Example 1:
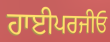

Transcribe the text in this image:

ਹਾਈਪਰਜੀਓ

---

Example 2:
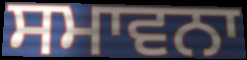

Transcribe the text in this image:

ਸਮਾਵਨਾ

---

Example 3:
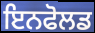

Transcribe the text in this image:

ਇਨਫੋਲਡ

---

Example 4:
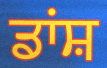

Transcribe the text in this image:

ਡਾਂਸ਼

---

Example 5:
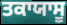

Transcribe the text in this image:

ਤਕਾਯਾਸੂ